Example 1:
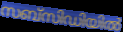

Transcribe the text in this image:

സബ്സിഡിയിൽ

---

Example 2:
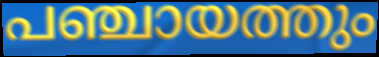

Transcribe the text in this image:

പഞ്ചായത്തും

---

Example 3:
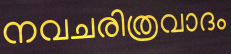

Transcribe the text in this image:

നവചരിത്രവാദം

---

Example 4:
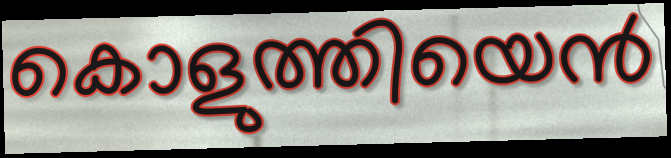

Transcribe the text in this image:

കൊളുത്തിയെൻ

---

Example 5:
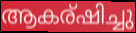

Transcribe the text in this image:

ആകര്ഷിച്ചു